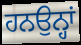
ਹਨਉਨ੍ਹਾਂ